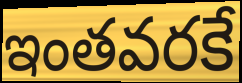
ఇంతవరకే